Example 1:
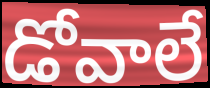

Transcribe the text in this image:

డోవాలే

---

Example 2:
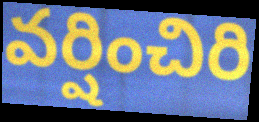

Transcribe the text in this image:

వర్షించిరి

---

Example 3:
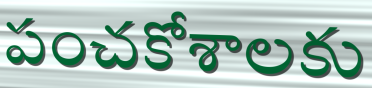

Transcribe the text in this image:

పంచకోశాలకు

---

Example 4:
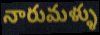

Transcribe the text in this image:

నారుమళ్ళు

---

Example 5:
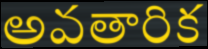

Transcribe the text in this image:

అవతారిక